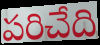
పరిచేది